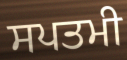
ਸਪਤਮੀ